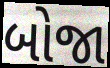
બોજા